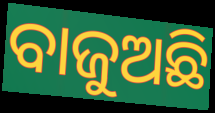
ବାଜୁଅଛି